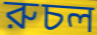
রুচল